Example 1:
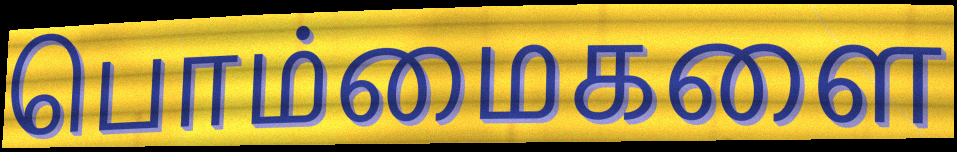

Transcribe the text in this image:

பொம்மைகளை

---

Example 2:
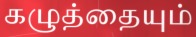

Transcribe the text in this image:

கழுத்தையும்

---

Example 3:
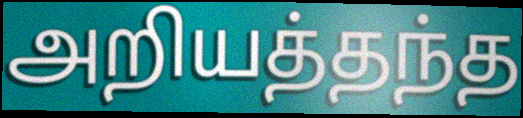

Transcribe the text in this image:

அறியத்தந்த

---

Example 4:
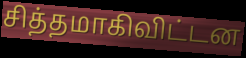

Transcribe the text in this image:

சித்தமாகிவிட்டன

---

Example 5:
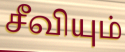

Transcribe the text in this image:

சீவியும்